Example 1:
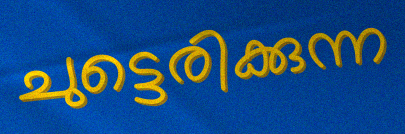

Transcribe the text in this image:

ചുട്ടെരിക്കുന്ന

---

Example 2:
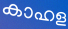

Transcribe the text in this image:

കാഹള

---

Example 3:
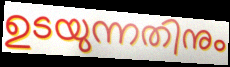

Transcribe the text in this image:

ഉടയുന്നതിനും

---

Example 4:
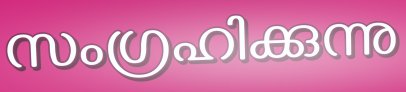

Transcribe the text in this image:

സംഗ്രഹിക്കുന്നു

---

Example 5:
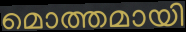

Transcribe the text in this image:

മൊത്തമായി